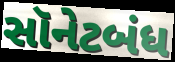
સૉનેટબંધ